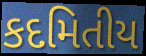
કદમિતીય